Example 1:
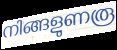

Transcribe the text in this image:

നിങ്ങളുണരൂ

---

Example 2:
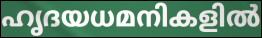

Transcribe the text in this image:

ഹൃദയധമനികളിൽ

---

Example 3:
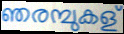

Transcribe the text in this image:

ഞരമ്പുകള്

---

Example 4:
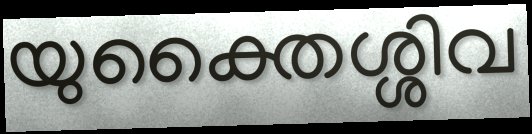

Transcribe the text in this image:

യുക്തൈശ്ശിവ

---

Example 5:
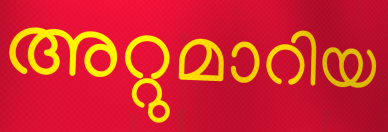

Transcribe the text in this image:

അറ്റുമാറിയ